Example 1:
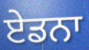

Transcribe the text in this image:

ਏਡਨਾ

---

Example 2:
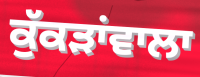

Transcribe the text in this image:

ਕੁੱਕੜਾਂਵਾਲਾ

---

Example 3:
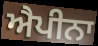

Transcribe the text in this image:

ਐਪੀਨਾ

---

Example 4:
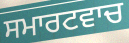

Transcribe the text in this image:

ਸਮਾਰਟਵਾਚ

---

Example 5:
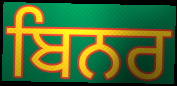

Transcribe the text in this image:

ਬਿਨਰ